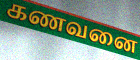
கணவனை